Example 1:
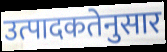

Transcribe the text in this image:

उत्पादकतेनुसार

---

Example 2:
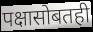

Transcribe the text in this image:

पक्षासोबतही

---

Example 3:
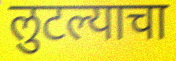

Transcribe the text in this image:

लुटल्याचा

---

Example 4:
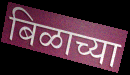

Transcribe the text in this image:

बिळाच्या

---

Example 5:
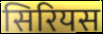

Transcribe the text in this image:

सिरियस